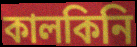
কালকিনি